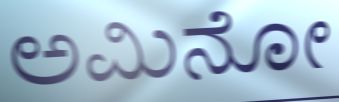
ಅಮಿನೋ